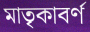
মাতৃকাবর্ণ